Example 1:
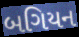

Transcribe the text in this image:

બગિયન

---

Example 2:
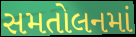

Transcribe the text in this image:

સમતોલનમાં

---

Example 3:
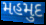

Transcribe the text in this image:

મહમુદ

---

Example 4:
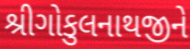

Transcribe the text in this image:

શ્રીગોકુલનાથજીને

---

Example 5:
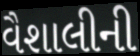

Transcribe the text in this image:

વૈશાલીની